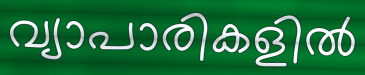
വ്യാപാരികളിൽ